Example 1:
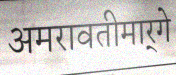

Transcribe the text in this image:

अमरावतीमार्गे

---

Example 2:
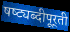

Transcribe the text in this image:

षष्ट्यब्दीपूर्ती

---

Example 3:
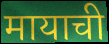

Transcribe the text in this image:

मायाची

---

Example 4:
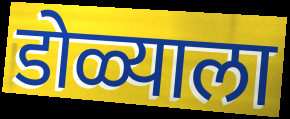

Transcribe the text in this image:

डोळ्याला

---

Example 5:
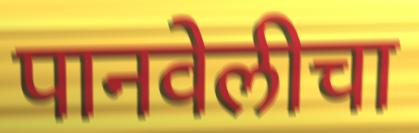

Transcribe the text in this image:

पानवेलीचा